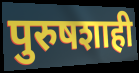
पुरुषशाही